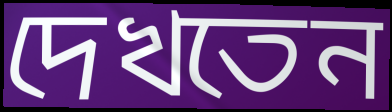
দেখতেন